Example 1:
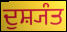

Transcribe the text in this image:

ਦੁਸ਼੍ਯੰਤ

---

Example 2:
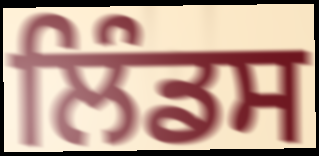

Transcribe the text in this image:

ਲਿੰਡਸ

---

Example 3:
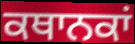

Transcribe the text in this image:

ਕਥਾਨਕਾਂ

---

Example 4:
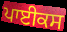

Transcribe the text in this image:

ਪਾਈਕਸ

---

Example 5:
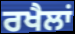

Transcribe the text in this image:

ਰਖੈਲਾਂ